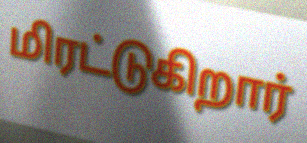
மிரட்டுகிறார்